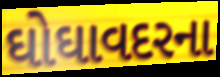
ઘોઘાવદરના